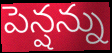
పెన్షన్ను